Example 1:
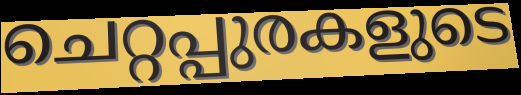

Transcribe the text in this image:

ചെറ്റപ്പുരകളുടെ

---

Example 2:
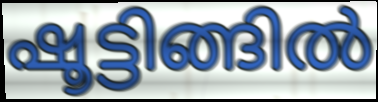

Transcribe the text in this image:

ഷൂട്ടിങ്ങിൽ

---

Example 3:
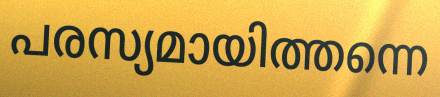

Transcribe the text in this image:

പരസ്യമായിത്തന്നെ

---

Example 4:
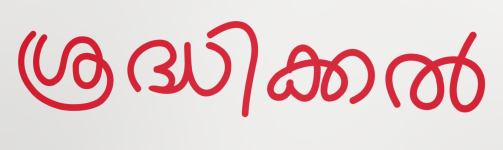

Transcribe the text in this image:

ശ്രദ്ധിക്കൽ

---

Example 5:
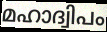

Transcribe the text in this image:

മഹാദ്വിപം